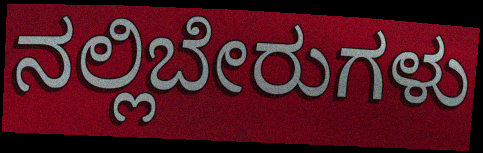
ನಲ್ಲಿಬೇರುಗಳು